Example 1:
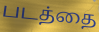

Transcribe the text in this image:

படத்தை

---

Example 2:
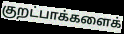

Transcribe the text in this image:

குறட்பாக்களைக்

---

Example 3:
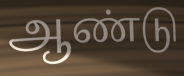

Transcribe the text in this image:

ஆண்டு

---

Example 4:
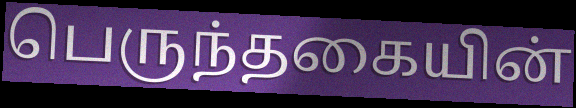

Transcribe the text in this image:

பெருந்தகையின்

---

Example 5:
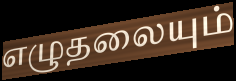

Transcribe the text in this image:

எழுதலையும்